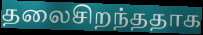
தலைசிறந்ததாக